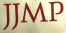
JJMP